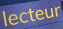
lecteur